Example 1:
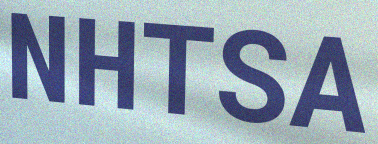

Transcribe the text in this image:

NHTSA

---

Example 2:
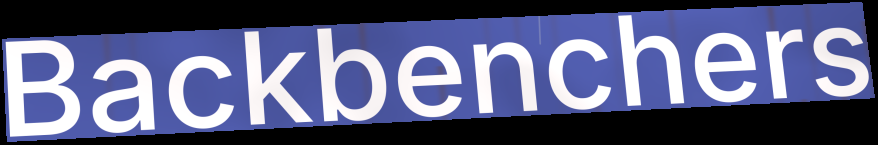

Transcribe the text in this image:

Backbenchers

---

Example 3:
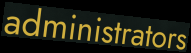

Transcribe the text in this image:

administrators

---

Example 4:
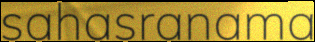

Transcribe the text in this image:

sahasranama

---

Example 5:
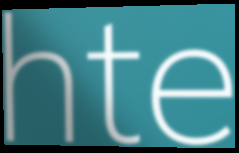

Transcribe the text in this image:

hte